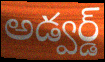
అడ్వర్డ్